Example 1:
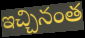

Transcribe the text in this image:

ఇచ్చినంత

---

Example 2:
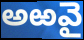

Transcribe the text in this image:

అఱవై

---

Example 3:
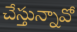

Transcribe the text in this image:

చేస్తున్నావో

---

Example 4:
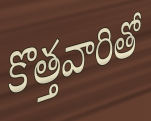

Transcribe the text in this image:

కొత్తవారితో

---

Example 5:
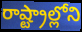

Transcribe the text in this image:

రాష్ట్రాల్లోని